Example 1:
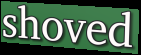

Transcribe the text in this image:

shoved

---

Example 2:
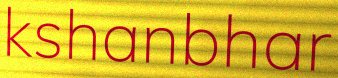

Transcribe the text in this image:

kshanbhar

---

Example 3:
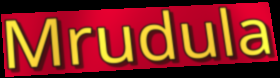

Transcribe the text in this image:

Mrudula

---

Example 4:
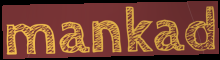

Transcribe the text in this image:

mankad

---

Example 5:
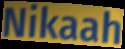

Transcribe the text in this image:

Nikaah